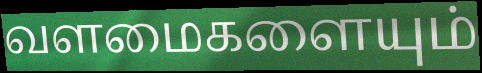
வளமைகளையும்